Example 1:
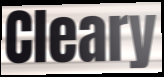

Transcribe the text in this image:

Cleary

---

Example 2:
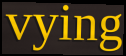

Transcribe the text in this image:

vying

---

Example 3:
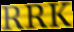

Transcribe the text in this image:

RRK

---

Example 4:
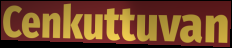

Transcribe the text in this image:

Cenkuttuvan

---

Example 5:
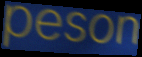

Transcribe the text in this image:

peson